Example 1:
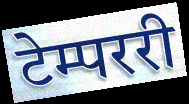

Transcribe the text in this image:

टेम्पररी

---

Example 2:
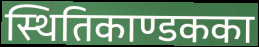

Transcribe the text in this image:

स्थितिकाण्डकका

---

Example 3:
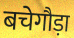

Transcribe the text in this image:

बचेगौड़ा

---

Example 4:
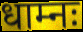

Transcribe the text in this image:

धाम्नः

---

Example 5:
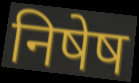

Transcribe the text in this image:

निषेष